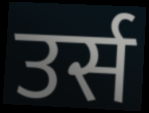
उर्स